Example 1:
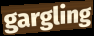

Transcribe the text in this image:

gargling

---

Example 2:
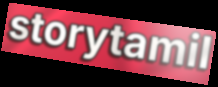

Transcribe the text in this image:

storytamil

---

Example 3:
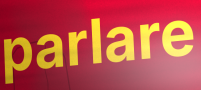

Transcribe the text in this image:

parlare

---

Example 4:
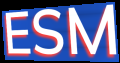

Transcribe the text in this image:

ESM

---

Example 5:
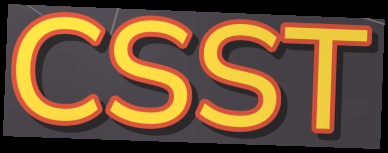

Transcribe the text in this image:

CSST